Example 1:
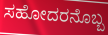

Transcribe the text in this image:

ಸಹೋದರನೊಬ್ಬ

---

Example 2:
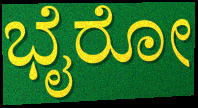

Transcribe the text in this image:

ಭೈರೋ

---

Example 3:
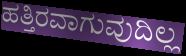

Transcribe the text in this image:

ಹತ್ತಿರವಾಗುವುದಿಲ್ಲ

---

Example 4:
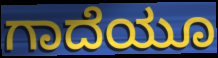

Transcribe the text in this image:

ಗಾದೆಯೂ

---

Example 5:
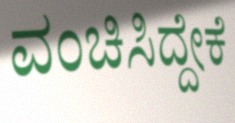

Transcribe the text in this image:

ವಂಚಿಸಿದ್ದೇಕೆ